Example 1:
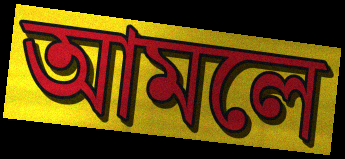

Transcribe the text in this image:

আমলে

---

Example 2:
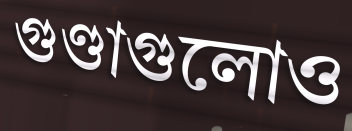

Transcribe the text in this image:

গুণ্ডাগুলোও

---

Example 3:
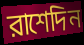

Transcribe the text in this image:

রাশেদিন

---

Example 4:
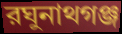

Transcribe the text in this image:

রঘুনাথগঞ্জ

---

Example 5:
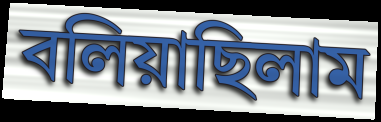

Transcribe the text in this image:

বলিয়াছিলাম